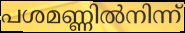
പശമണ്ണിൽനിന്ന്